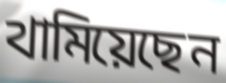
থামিয়েছেন